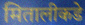
मितालीकडे